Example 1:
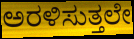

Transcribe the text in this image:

ಅರಳಿಸುತ್ತಲೇ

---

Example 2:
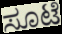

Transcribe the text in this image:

ಸೂಟೆ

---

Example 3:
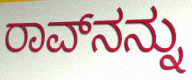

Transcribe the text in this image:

ರಾವ್‌ನನ್ನು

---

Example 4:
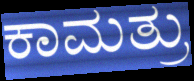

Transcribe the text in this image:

ಕಾಮತ್ರು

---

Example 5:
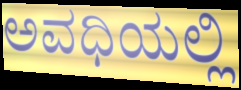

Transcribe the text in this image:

ಅವಧಿಯಲ್ಲಿ